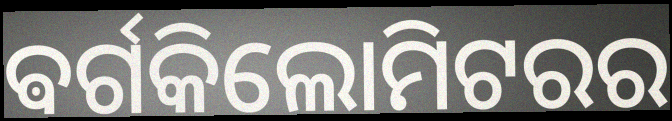
ଵର୍ଗକିଲୋମିଟରର